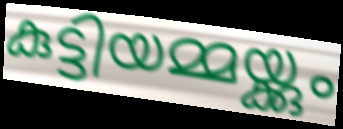
കുട്ടിയമ്മയ്ക്കും